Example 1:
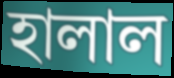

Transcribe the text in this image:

হালাল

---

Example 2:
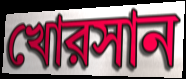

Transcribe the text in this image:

খোরসান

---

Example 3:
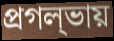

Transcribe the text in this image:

প্রগল্‌ভায়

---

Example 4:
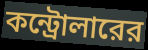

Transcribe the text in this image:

কন্ট্রোলারের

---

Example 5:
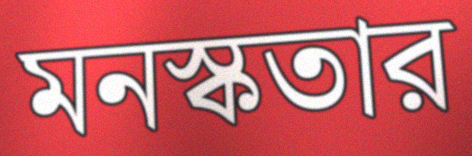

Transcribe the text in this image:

মনস্কতার